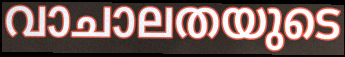
വാചാലതയുടെ